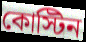
কোস্টিন